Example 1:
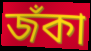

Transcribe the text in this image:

জঁকা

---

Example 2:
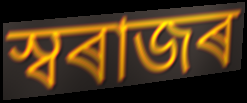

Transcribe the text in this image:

স্বৰাজৰ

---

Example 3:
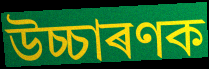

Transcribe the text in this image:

উচ্চাৰণক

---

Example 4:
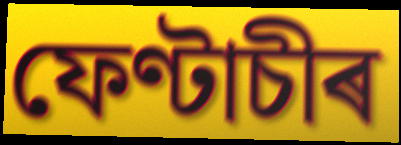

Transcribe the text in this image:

ফেণ্টাচীৰ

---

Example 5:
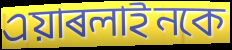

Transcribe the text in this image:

এয়াৰলাইনকে